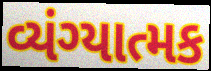
વ્યંગ્યાત્મક